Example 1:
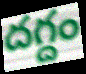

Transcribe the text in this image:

దగ్దం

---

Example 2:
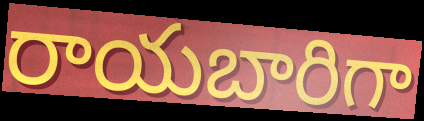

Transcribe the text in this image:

రాయబారిగా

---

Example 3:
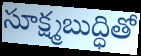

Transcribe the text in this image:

సూక్ష్మబుద్ధితో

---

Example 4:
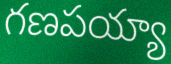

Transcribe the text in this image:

గణపయ్యా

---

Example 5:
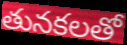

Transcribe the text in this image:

తునకలతో